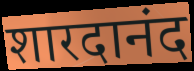
शारदानंद